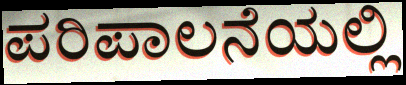
ಪರಿಪಾಲನೆಯಲ್ಲಿ